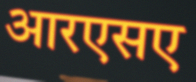
आरएसए